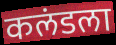
कलंडला